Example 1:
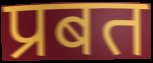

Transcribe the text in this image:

प्रबत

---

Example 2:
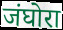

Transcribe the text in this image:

जंघोरा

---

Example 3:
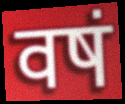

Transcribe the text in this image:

वषं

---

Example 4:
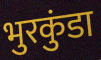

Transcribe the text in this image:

भुरकुंडा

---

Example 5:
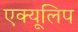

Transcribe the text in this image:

एक्यूलिप